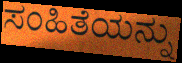
ಸಂಹಿತೆಯನ್ನು